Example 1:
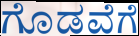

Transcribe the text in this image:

ಗೊಡವೆಗೆ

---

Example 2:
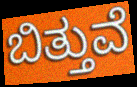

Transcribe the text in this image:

ಬಿತ್ತುವೆ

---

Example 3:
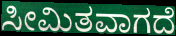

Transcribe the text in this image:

ಸೀಮಿತವಾಗದೆ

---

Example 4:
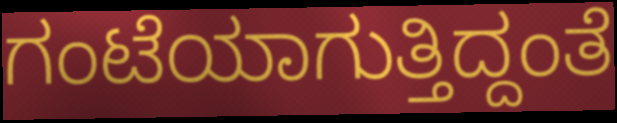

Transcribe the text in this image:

ಗಂಟೆಯಾಗುತ್ತಿದ್ದಂತೆ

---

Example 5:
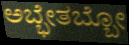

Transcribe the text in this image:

ಅಬ್ಭೇತಬ್ಬೋ